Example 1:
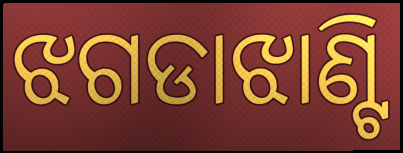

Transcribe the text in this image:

ଝଗଡାଝାଣ୍ଟି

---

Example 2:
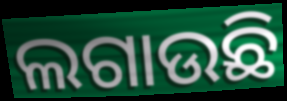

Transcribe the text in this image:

ଲଗାଉଛି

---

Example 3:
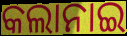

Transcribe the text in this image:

କଲାନାଇ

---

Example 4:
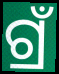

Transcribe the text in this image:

ଗ୍ରଁ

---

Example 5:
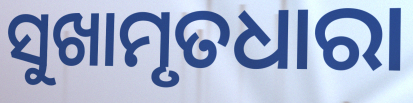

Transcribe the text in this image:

ସୁଖାମୃତଧାରା